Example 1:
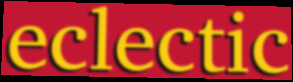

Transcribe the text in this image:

eclectic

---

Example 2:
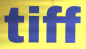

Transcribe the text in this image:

tiff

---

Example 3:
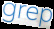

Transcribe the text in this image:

grep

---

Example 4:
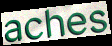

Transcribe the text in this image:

aches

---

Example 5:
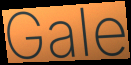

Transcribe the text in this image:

Gale